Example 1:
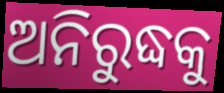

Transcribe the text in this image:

ଅନିରୁଦ୍ଧକୁ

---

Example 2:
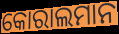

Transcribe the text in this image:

କୋରାଲମାନ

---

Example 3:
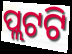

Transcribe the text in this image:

ପ୍ଲଟଟି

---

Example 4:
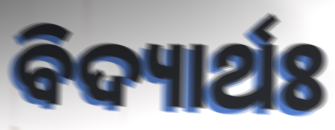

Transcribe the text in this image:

ବିଦ୍ୟାର୍ଥଃ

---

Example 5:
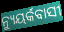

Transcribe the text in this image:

ନ୍ୟୁୟର୍କବାସୀ